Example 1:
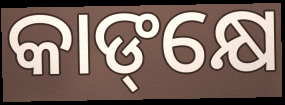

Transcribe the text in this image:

କାଙ୍‌କ୍ଷେ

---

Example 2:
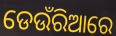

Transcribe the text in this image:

ଡେଉଁରିଆରେ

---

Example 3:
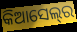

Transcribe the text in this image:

କିଆସେଲ୍‌ର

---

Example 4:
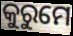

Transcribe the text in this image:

କୁରୁମେ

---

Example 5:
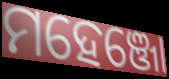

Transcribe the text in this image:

ମହେଞ୍ଜୋ